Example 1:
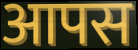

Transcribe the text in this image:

आपस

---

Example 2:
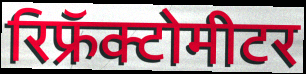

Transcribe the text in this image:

रिफ्रॅक्टोमीटर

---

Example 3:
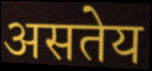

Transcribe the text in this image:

असतेय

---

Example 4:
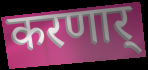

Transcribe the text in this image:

करणार्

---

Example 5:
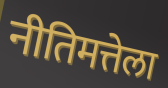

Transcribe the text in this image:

नीतिमत्तेला